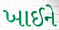
ખાઈને